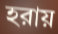
হরায়